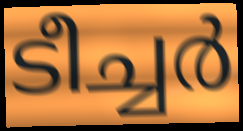
ടീച്ചർ